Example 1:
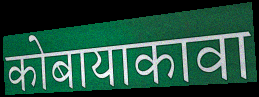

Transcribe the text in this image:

कोबायाकावा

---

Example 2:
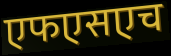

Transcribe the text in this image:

एफएसएच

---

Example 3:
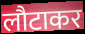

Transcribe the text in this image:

लौटाकर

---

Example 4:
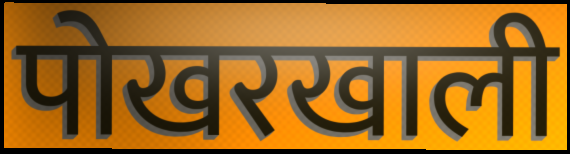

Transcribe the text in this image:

पोखरखाली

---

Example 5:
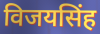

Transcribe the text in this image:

विजयसिंह